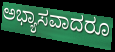
ಅಭ್ಯಾಸವಾದರೂ